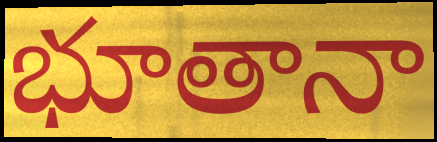
భూతానా